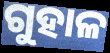
ଗୁହାଳ